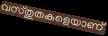
വസ്തുതകളെയാണ്